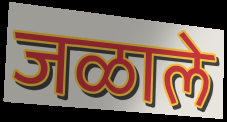
जळाले